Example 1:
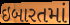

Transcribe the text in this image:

ઇબારતમાં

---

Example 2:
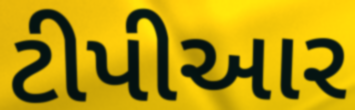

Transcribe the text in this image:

ટીપીઆર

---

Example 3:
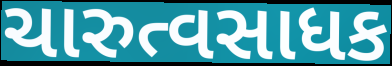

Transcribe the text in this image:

ચારુત્વસાધક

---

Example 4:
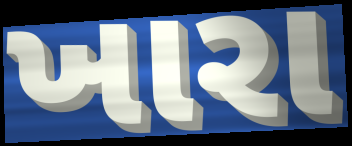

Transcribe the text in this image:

ખારા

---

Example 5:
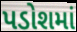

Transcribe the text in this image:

પડોશમાં